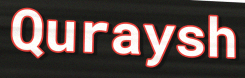
Quraysh